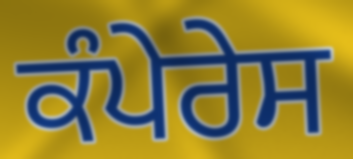
ਕੰਪੇਰੇਸ